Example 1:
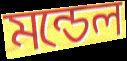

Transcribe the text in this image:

মন্ডেল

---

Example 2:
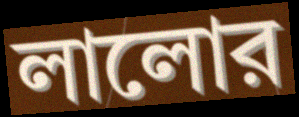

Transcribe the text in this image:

লালোর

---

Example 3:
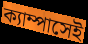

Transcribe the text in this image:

ক্যাম্পাসেই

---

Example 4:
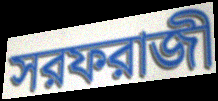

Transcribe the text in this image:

সরফরাজী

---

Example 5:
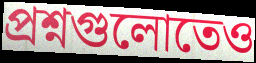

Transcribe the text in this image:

প্রশ্নগুলোতেও